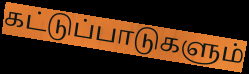
கட்டுப்பாடுகளும்